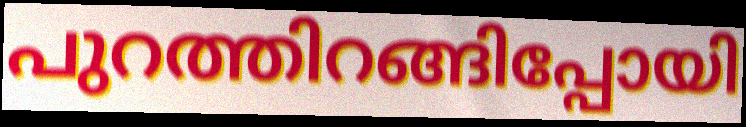
പുറത്തിറങ്ങിപ്പോയി